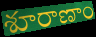
శూరాణాం